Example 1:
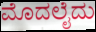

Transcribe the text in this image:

ಮೊದಲೈದು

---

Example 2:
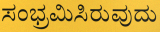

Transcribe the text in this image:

ಸಂಭ್ರಮಿಸಿರುವುದು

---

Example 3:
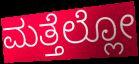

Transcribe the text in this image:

ಮತ್ತೆಲ್ಲೋ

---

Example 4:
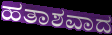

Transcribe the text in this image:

ಹತಾಶವಾದ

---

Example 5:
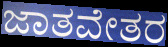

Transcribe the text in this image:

ಜಾತವೇತರ